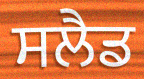
ਸਲੈਡ